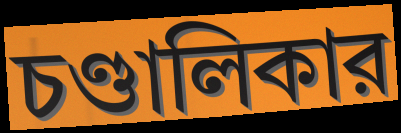
চণ্ডালিকার